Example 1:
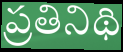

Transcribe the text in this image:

ప్రతినిథి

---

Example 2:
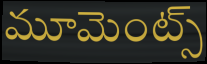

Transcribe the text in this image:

మూమెంట్స్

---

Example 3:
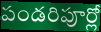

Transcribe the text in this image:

పండరిపూర్లో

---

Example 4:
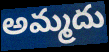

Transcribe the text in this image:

అమ్మదు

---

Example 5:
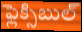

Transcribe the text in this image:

ఫ్లెక్సిబుల్